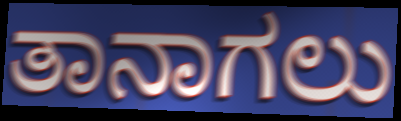
ತಾನಾಗಲು